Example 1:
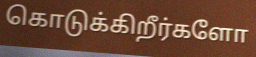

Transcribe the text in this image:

கொடுக்கிறீர்களோ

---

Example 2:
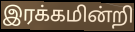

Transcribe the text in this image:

இரக்கமின்றி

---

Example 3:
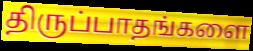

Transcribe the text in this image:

திருப்பாதங்களை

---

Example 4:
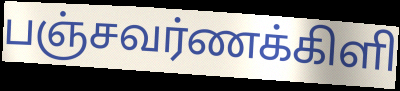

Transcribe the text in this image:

பஞ்சவர்ணக்கிளி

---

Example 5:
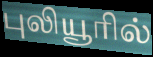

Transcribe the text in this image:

புலியூரில்